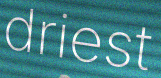
driest